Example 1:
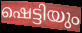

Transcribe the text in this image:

ഷെട്ടിയും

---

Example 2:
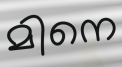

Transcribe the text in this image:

മിനെ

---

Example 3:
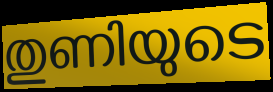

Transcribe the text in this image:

തുണിയുടെ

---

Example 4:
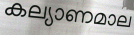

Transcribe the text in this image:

കല്യാണമാല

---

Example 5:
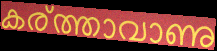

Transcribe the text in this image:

കര്ത്താവാണു